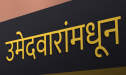
उमेदवारांमधून